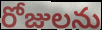
రోజులను